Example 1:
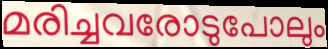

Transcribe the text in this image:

മരിച്ചവരോടുപോലും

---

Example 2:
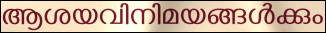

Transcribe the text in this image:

ആശയവിനിമയങ്ങൾക്കും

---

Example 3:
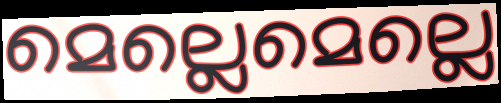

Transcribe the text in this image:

മെല്ലെമെല്ലെ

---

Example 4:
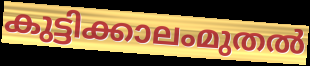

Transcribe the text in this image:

കുട്ടിക്കാലംമുതൽ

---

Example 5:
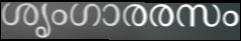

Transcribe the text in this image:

ശൃംഗാരരസം